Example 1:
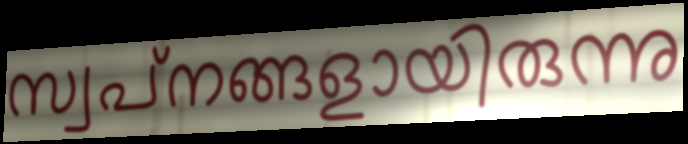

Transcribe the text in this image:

സ്വപ്‌നങ്ങളായിരുന്നു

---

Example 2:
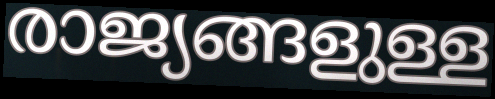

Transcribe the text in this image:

രാജ്യങ്ങളുള്ള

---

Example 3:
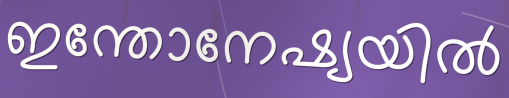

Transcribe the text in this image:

ഇന്തോനേഷ്യയിൽ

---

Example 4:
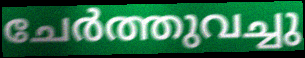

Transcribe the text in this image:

ചേർത്തുവച്ചു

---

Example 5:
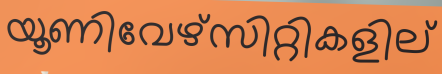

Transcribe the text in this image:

യൂണിവേഴ്സിറ്റികളില്